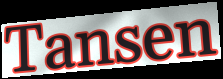
Tansen